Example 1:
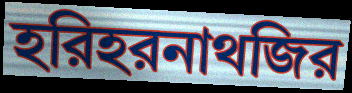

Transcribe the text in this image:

হরিহরনাথজির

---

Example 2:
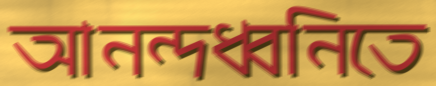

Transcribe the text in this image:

আনন্দধ্বনিতে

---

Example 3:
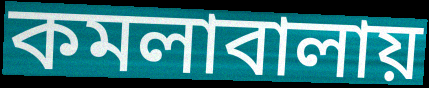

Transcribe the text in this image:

কমলাবালায়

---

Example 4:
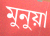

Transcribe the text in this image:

মুনুয়া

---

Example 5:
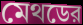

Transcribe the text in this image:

মেথডের